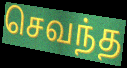
செவந்த